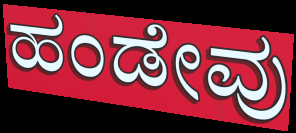
ಹಂಡೇವು